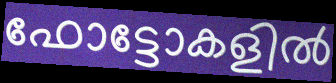
ഫോട്ടോകളിൽ